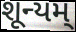
શૂન્યમ્